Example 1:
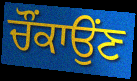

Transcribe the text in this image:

ਚੌਂਕਾਉਂਣ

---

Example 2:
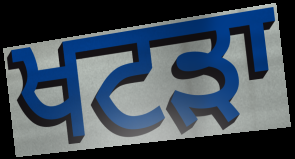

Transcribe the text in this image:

ਖਟੜਾ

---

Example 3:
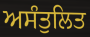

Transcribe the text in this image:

ਅਸੰਤੁਲਿਤ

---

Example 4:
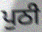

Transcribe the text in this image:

ਪੁਠੀ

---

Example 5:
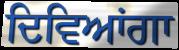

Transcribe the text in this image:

ਦਿਵਿਆਂਗਾ